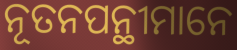
ନୂତନପନ୍ଥୀମାନେ